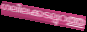
ഗലീലക്കടല്പുറത്തു